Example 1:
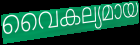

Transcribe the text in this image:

വൈകല്യമായ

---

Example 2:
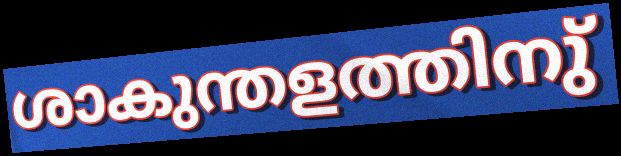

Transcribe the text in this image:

ശാകുന്തളത്തിനു്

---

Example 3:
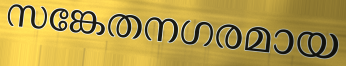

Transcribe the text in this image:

സങ്കേതനഗരമായ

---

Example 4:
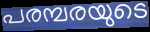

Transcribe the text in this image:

പരമ്പരയുടെ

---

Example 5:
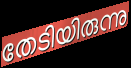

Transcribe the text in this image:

തേടിയിരുന്നു